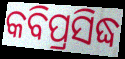
କବିପ୍ରସିଦ୍ଧ